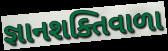
જ્ઞાનશક્તિવાળા